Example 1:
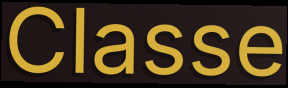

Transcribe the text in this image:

Classe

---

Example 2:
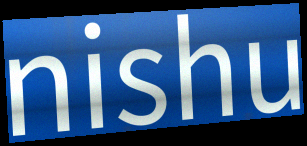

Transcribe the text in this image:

nishu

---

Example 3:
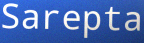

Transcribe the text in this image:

Sarepta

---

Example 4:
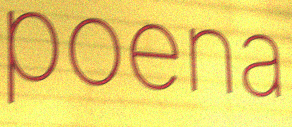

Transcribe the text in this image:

poena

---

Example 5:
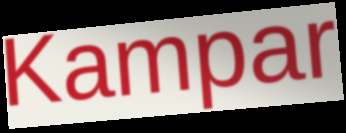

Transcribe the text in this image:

Kampar